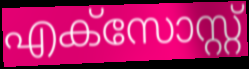
എക്സോസ്റ്റ്